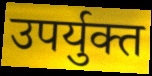
उपर्युक्त